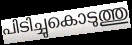
പിടിച്ചുകൊടുത്തു